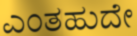
ಎಂತಹುದೇ